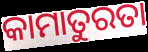
କାମାତୁରତା